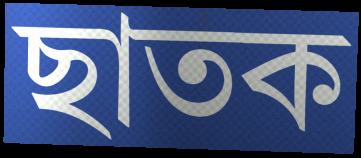
ছাতক